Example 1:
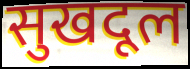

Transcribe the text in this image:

सुखदूल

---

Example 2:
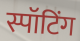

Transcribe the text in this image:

स्पॉटिंग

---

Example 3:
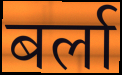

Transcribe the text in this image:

बर्ला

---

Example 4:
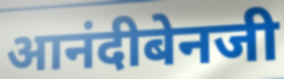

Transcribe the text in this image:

आनंदीबेनजी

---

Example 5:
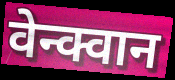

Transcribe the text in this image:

वेन्क्वान